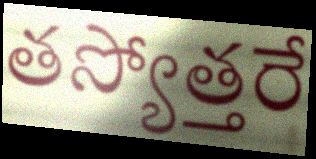
తస్యోత్తరే